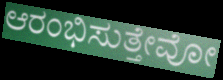
ಆರಂಭಿಸುತ್ತೇವೋ